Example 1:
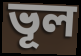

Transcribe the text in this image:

ভূল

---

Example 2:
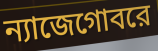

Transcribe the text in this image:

ন্যাজেগোবরে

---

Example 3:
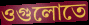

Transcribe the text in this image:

ওগুলোতে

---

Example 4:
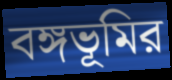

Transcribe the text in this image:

বঙ্গভূমির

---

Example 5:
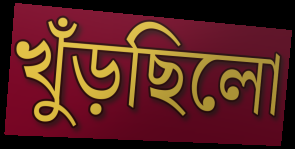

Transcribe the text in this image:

খুঁড়ছিলো